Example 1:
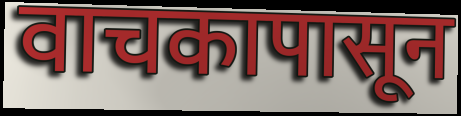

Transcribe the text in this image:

वाचकापासून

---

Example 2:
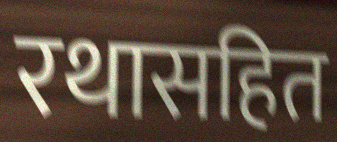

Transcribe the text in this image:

रथासहित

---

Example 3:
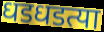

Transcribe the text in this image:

धडधडत्या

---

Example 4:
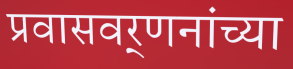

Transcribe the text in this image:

प्रवासवर्णनांच्या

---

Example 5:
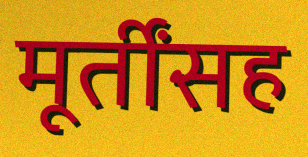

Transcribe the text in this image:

मूर्तींसह